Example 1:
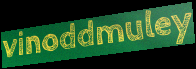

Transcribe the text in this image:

vinoddmuley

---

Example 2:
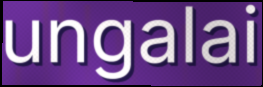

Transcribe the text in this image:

ungalai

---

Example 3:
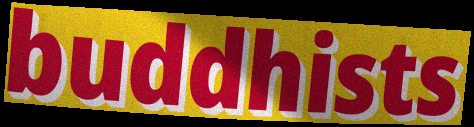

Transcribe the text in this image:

buddhists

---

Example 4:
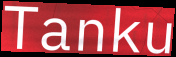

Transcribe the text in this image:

Tanku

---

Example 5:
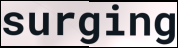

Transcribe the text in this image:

surging